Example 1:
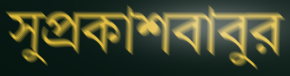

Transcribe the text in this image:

সুপ্রকাশবাবুর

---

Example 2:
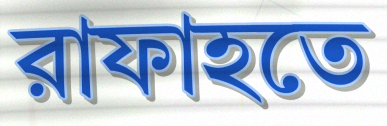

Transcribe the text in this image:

রাফাহতে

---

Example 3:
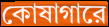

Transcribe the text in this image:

কোষাগারে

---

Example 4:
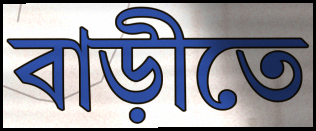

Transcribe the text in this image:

বাড়ীতে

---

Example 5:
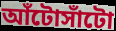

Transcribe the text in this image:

আঁটোসাঁটো